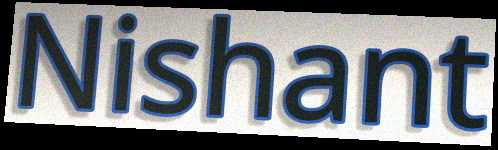
Nishant